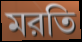
মরতি